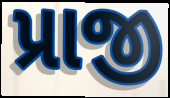
પ્રાજી